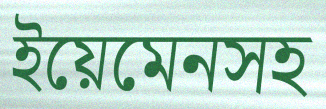
ইয়েমেনসহ